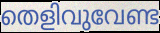
തെളിവുവേണ്ട